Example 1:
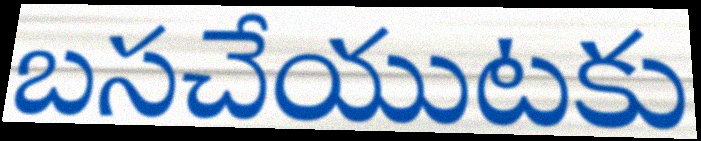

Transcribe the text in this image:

బసచేయుటకు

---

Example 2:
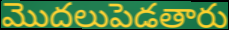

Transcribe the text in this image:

మొదలుపెడతారు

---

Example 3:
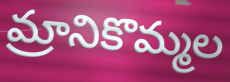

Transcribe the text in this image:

మ్రానికొమ్మల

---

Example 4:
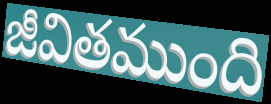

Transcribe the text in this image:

జీవితముంది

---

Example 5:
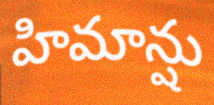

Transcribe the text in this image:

హిమాన్షు